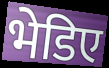
भेडिए